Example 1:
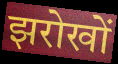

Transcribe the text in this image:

झरोखों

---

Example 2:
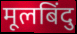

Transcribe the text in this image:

मूलबिंदु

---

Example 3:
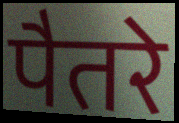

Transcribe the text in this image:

पैतरे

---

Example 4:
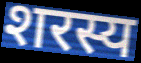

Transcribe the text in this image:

शरस्य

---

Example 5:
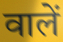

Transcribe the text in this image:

वालें